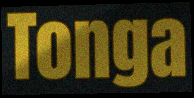
Tonga